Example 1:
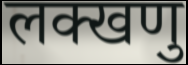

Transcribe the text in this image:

लक्खणु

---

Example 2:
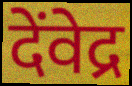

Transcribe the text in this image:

देंवेद्र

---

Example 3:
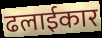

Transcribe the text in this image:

ढलाईकार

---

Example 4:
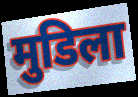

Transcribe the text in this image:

मुडिला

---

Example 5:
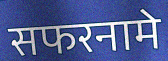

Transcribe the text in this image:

सफरनामे